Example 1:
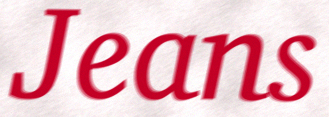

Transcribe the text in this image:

Jeans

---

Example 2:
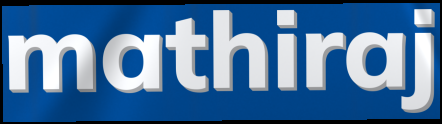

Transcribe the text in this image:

mathiraj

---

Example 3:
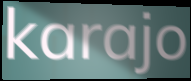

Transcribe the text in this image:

karajo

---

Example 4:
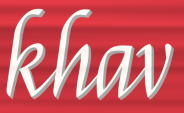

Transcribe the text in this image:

khav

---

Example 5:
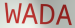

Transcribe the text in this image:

WADA